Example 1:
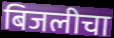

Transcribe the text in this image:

बिजलीचा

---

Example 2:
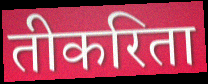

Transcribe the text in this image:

तीकरिता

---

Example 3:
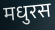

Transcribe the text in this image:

मधुरस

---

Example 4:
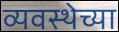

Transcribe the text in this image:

व्यवस्थेच्या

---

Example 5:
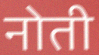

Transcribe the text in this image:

नोती